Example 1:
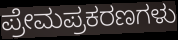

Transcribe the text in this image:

ಪ್ರೇಮಪ್ರಕರಣಗಳು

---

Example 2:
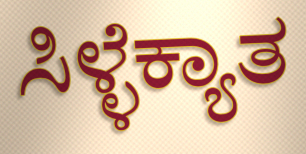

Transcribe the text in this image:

ಸಿಳ್ಳೆಕ್ಯಾತ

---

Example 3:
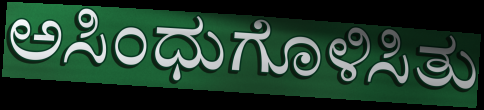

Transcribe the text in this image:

ಅಸಿಂಧುಗೊಳಿಸಿತು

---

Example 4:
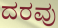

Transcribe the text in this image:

ದರವು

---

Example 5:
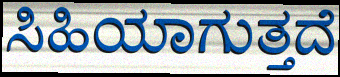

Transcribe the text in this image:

ಸಿಹಿಯಾಗುತ್ತದೆ